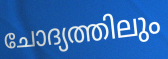
ചോദ്യത്തിലും